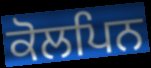
ਕੋਲਪਿਨ